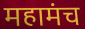
महामंच